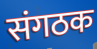
संगठक